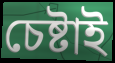
চেষ্টাই